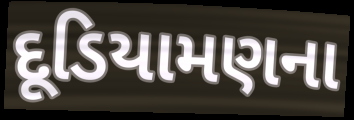
દૂડિયામણના